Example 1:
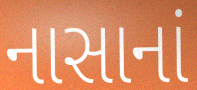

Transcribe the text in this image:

નાસાનાં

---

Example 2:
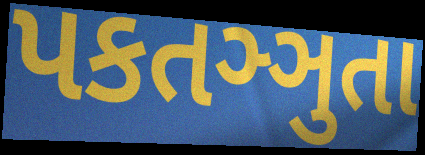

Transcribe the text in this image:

પકતઞ્ઞુતા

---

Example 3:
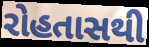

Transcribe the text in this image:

રોહતાસથી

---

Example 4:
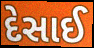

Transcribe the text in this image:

દેસાઈ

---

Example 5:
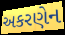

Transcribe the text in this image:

અકરણેન